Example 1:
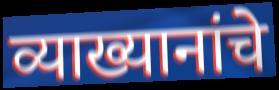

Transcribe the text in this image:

व्याख्यानांचे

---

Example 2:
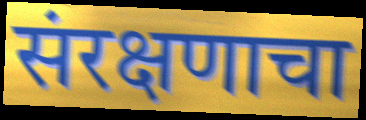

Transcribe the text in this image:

संरक्षणाचा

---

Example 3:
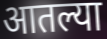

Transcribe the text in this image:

आतल्या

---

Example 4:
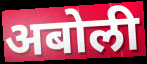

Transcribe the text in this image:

अबोली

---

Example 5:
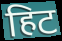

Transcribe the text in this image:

हिट